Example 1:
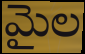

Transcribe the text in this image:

మైల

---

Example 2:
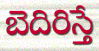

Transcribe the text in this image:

బెదిరిస్తే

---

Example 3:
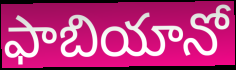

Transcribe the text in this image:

ఫాబియానో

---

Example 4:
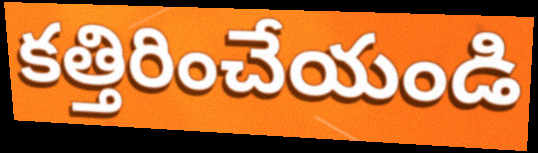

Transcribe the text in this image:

కత్తిరించేయండి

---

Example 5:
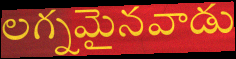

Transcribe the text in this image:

లగ్నమైనవాడు